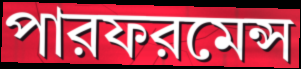
পারফরমেন্স